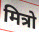
मित्रो